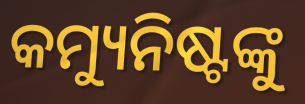
କମ୍ୟୁନିଷ୍ଟଙ୍କୁ